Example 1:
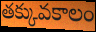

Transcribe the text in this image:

తక్కువకాలం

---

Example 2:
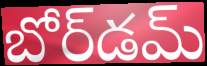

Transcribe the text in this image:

బోర్‌డమ్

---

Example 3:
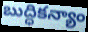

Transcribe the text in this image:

బుద్ధికన్యాం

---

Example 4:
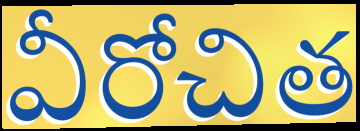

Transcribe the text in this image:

వీరోచిత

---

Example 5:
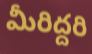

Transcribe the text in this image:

మీరిద్దరి